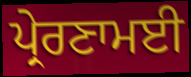
ਪ੍ਰੇਰਣਾਮਈ